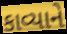
કાવ્યાને